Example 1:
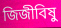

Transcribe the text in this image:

জিজীবিষু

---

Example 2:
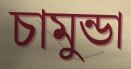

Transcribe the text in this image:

চামুন্ডা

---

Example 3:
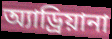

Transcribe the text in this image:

অ্যাড্রিয়ানা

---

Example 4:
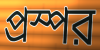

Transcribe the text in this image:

প্রস্পর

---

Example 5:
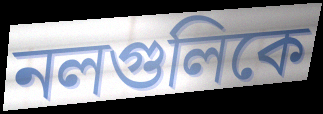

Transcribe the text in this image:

নলগুলিকে